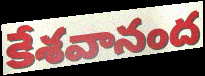
కేశవానంద